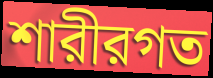
শারীরগত